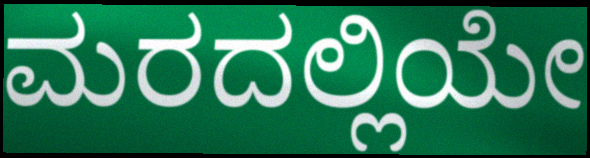
ಮರದಲ್ಲಿಯೇ